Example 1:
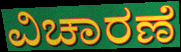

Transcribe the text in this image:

ವಿಚಾರಣೆ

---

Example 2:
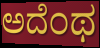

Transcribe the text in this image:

ಅದೆಂಥ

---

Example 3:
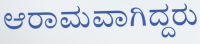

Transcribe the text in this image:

ಆರಾಮವಾಗಿದ್ದರು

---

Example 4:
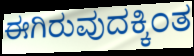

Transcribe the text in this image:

ಈಗಿರುವುದಕ್ಕಿಂತ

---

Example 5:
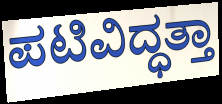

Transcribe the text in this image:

ಪಟಿವಿದ್ಧತ್ತಾ